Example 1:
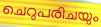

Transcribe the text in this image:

ചെറുപരിചയും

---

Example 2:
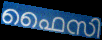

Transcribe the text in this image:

ഫൈസി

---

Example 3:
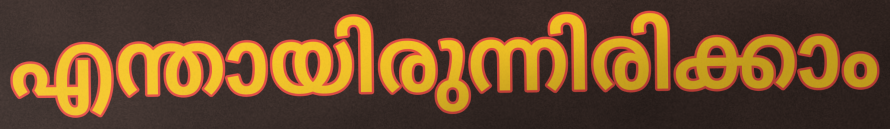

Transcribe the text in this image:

എന്തായിരുന്നിരിക്കാം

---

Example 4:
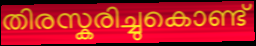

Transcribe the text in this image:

തിരസ്കരിച്ചുകൊണ്ട്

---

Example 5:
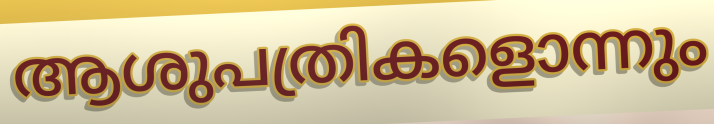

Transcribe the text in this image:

ആശുപത്രികളൊന്നും